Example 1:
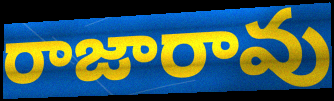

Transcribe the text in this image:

రాజారావు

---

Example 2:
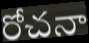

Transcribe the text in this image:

రోచనా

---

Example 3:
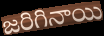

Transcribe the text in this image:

జరిగినాయి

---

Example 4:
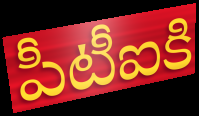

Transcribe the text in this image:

పీటీఐకి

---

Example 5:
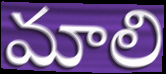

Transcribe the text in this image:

మాలి